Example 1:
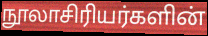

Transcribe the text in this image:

நூலாசிரியர்களின்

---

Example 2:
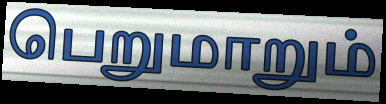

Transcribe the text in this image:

பெறுமாறும்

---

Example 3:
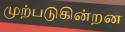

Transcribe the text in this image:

முற்படுகின்றன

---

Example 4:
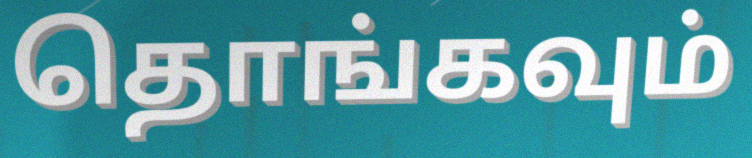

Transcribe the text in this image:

தொங்கவும்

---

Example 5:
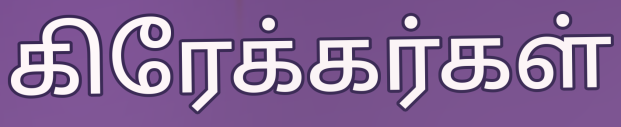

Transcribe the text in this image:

கிரேக்கர்கள்